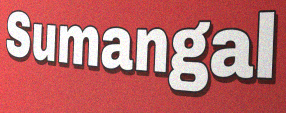
Sumangal